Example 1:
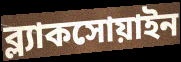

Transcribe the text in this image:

ব্ল্যাকসোয়াইন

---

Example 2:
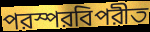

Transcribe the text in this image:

পরস্পরবিপরীত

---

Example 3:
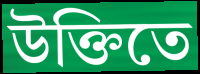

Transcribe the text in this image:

উক্তিতে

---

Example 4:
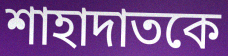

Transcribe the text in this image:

শাহাদাতকে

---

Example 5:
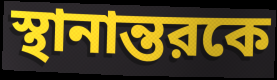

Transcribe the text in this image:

স্থানান্তরকে